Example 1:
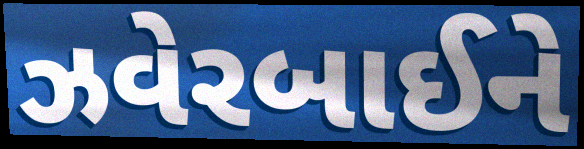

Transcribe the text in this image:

ઝવેરબાઈને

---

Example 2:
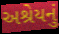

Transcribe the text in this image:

અશ્રેયનું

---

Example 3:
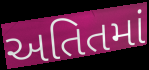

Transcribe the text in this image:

અતિતમાં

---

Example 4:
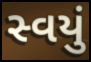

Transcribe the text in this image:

સ્વયું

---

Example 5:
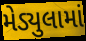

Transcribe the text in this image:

મેડ્યુલામાં